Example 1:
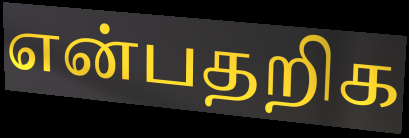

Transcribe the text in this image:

என்பதறிக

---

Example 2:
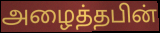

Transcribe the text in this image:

அழைத்தபின்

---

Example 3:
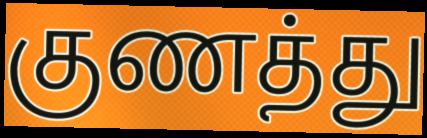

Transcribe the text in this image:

குணத்து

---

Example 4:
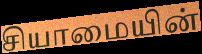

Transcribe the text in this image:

சியாமையின்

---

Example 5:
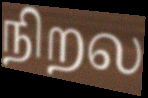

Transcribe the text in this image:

நிறல